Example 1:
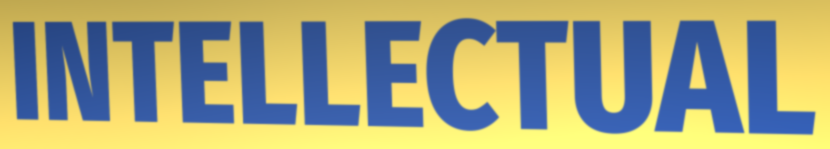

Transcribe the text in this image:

INTELLECTUAL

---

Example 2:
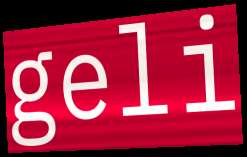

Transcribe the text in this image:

geli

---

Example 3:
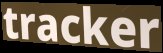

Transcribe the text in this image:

tracker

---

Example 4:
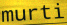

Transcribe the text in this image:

murti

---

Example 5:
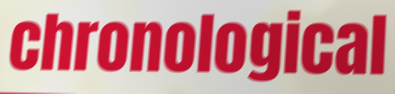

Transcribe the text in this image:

chronological